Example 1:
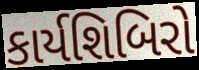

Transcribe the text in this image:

કાર્યશિબિરો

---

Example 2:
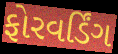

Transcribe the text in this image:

ફોરવર્ડિંગ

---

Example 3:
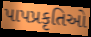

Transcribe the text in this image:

પાપપ્રકૃતિઓ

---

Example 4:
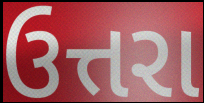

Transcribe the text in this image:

ઉત્તરા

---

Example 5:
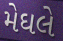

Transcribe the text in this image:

મેઘલે